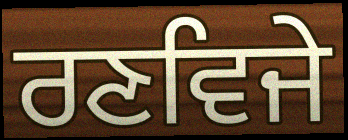
ਰਣਵਿਜੇ